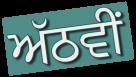
ਅੱਠਵੀੰ